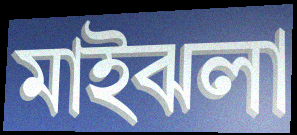
মাইঝলা